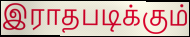
இராதபடிக்கும்